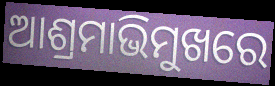
ଆଶ୍ରମାଭିମୁଖରେ